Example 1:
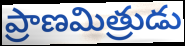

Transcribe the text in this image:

ప్రాణమిత్రుడు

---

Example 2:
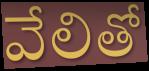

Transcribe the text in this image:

వేలితో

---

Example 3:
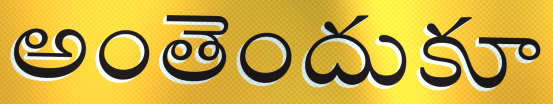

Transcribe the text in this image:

అంతెందుకూ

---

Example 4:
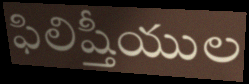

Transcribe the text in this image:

ఫిలిష్తీయుల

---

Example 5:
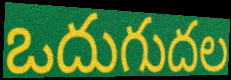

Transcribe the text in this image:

ఒదుగుదల